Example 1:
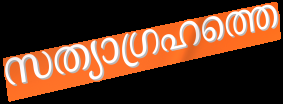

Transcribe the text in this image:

സത്യാഗ്രഹത്തെ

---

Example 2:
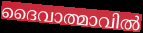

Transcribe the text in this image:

ദൈവാത്മാവിൽ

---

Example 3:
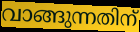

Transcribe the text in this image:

വാങ്ങുന്നതിന്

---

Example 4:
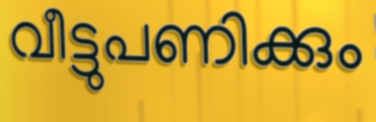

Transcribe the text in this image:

വീട്ടുപണിക്കും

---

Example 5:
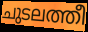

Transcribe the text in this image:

ചുടലത്തീ